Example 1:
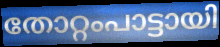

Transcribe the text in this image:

തോറ്റംപാട്ടായി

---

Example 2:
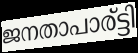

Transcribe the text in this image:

ജനതാപാര്ട്ടി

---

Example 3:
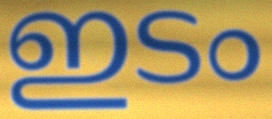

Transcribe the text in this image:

ഇടം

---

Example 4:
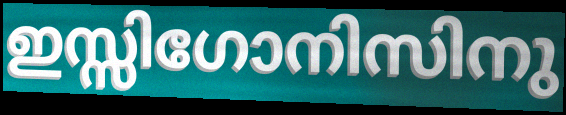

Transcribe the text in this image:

ഇസ്സിഗോനിസിനു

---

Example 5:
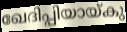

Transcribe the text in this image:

ഖേദിപ്പിയായ്കു